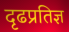
दृढप्रतिज्ञ